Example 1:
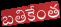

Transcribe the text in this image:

బతికేంత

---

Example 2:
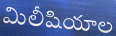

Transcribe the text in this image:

మిలీషియాల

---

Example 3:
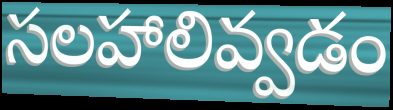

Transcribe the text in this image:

సలహాలివ్వడం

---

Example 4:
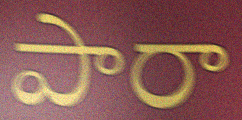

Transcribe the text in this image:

పారా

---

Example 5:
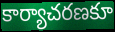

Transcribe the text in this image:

కార్యాచరణకూ